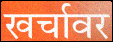
खर्चावर